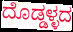
ದೊಡ್ಡಳ್ಳದ